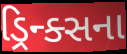
ડ્રિન્ક્સના